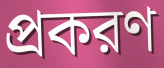
প্রকরণ